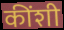
कींशी